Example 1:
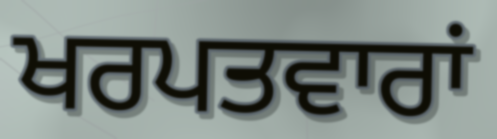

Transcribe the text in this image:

ਖਰਪਤਵਾਰਾਂ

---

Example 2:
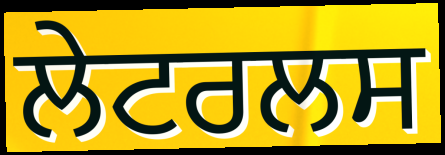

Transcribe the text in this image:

ਲੇਟਰਲਸ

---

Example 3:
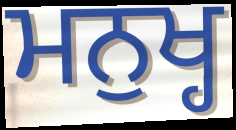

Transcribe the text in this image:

ਮਨੁਖ੍ਹ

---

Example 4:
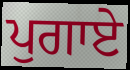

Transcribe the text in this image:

ਪੁਗਾਏ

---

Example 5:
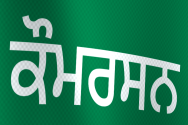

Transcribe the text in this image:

ਕੌਮਰਸਨ